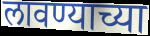
लावण्याच्या